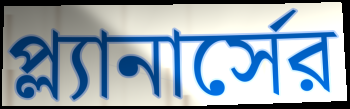
প্ল্যানার্সের